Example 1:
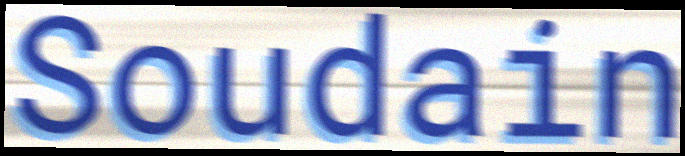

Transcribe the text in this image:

Soudain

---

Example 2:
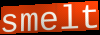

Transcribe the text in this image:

smelt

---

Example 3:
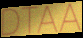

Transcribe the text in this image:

DTAA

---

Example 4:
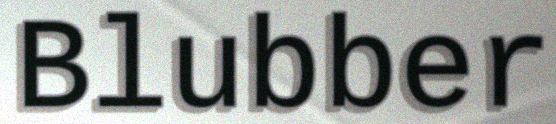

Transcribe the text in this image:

Blubber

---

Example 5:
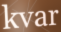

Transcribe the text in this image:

kvar